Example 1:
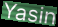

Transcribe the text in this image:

Yasin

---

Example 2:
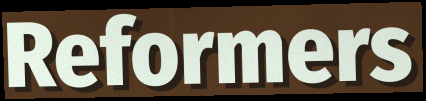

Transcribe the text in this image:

Reformers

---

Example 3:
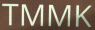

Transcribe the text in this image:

TMMK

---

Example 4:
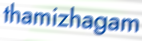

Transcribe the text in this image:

thamizhagam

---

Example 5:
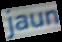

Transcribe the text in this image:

jaun